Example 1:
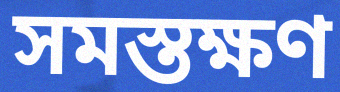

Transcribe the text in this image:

সমস্তক্ষণ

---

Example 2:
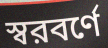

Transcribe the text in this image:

স্বরবর্ণে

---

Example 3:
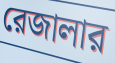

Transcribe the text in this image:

রেজালার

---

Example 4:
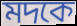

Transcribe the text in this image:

মদকে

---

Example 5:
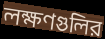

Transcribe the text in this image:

লক্ষণগুলির